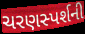
ચરણસ્પર્શની